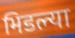
भिडल्या